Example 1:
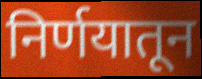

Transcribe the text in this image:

निर्णयातून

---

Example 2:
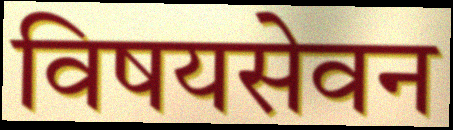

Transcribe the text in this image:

विषयसेवन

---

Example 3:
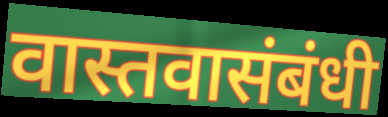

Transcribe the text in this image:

वास्तवासंबंधी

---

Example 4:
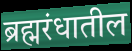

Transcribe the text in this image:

ब्रह्मरंधातील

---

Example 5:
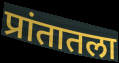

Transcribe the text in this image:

प्रांतातला